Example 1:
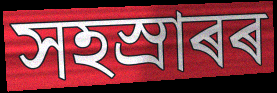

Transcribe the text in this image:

সহস্ৰাৰৰ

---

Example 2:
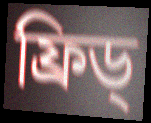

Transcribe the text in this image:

ফ্ৰিড্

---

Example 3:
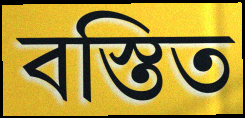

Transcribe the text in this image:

বস্তিত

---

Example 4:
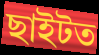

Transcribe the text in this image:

ছাইটত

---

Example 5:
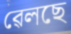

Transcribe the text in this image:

ৱেলছে